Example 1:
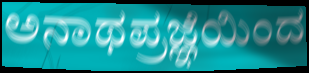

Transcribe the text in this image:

ಅನಾಥಪ್ರಜ್ಞೆಯಿಂದ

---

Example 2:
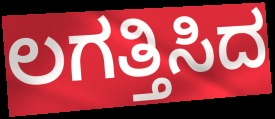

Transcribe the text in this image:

ಲಗತ್ತಿಸಿದ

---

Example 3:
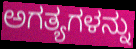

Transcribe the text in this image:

ಅಗತ್ಯಗಳನ್ನು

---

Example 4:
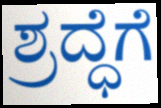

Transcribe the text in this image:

ಶ್ರದ್ಧೆಗೆ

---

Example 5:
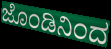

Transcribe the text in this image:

ಜೊಂಡಿನಿಂದ